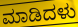
ಮಾಡಿದಳು